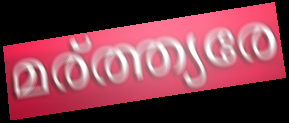
മര്ത്ത്യരേ